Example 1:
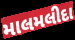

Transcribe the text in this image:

માલમલીદા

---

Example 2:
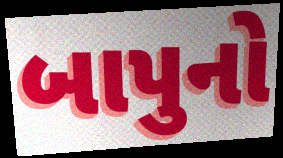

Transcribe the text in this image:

બાપુનો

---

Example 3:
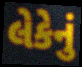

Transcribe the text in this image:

લેકેનું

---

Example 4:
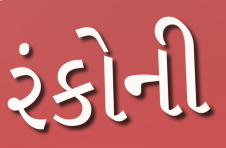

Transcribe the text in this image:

રંકોની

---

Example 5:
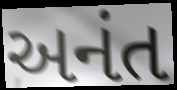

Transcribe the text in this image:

અનંત